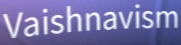
Vaishnavism